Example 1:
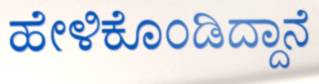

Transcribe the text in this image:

ಹೇಳಿಕೊಂಡಿದ್ದಾನೆ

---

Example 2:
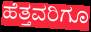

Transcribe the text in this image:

ಹೆತ್ತವರಿಗೂ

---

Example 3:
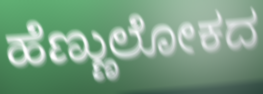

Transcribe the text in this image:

ಹೆಣ್ಣುಲೋಕದ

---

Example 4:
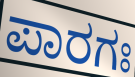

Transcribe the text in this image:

ಪಾರಗಃ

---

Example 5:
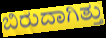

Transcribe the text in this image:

ಬಿರುದಾಗಿತ್ತು